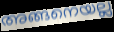
അങ്ങനെയല്ല